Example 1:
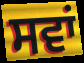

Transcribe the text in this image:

ਸਵਾਂ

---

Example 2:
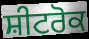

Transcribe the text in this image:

ਸ਼ੀਟਰੋਕ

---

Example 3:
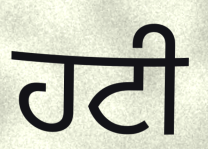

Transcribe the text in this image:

ਹਟੀ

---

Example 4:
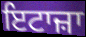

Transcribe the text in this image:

ਇਟਾਜ਼ਾ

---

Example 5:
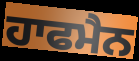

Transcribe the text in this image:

ਹਾਫਮੈਨ